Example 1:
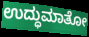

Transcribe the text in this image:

ಉದ್ಧುಮಾತೋ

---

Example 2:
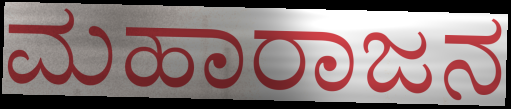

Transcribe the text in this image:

ಮಹಾರಾಜನ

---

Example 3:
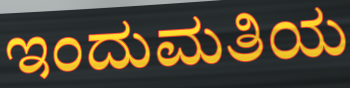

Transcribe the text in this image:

ಇಂದುಮತಿಯ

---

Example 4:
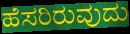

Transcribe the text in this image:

ಹೆಸರಿರುವುದು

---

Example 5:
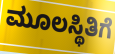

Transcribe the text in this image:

ಮೂಲಸ್ಥಿತಿಗೆ